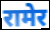
रामेर